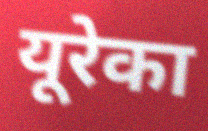
यूरेका